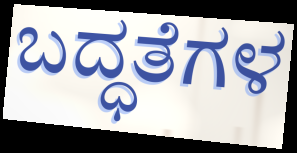
ಬದ್ಧತೆಗಳ